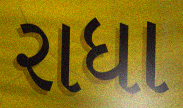
રાધા